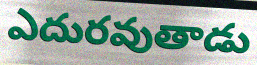
ఎదురవుతాడు